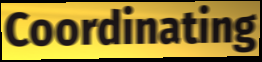
Coordinating